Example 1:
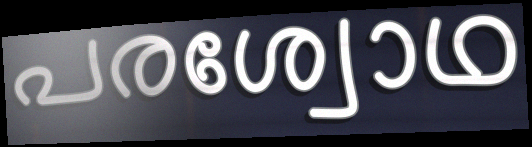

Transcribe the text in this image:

പരശ്വോഥ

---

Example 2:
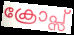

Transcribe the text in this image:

ക്രോപ്സ്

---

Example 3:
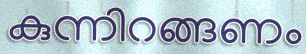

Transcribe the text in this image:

കുന്നിറങ്ങണം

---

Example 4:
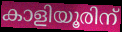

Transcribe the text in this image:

കാളിയൂരിന്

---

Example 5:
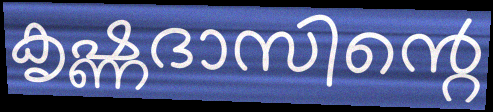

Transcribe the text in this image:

കൃഷ്ണദാസിന്റെ